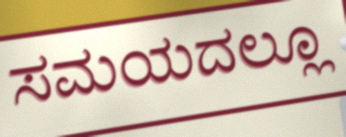
ಸಮಯದಲ್ಲೂ